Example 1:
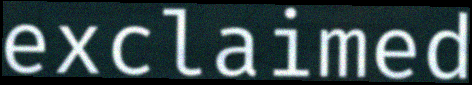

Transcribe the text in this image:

exclaimed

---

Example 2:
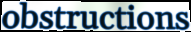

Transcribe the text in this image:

obstructions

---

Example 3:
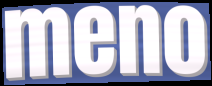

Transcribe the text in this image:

meno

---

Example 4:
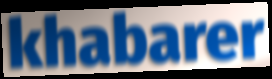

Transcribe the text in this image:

khabarer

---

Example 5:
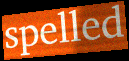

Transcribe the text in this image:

spelled